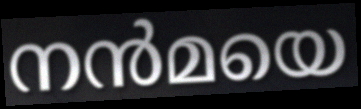
നൻമയെ